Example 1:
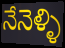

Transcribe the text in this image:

నేనెళ్ళి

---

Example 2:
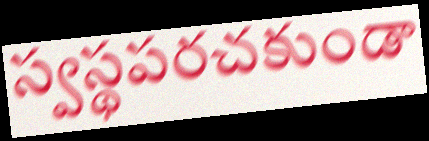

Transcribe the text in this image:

స్వస్థపరచకుండా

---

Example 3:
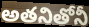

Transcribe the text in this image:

అతనితోనీ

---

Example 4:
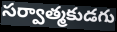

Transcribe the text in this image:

సర్వాత్మకుడగు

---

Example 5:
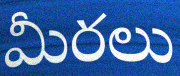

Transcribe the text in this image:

మీరలు